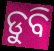
ଡୁବି